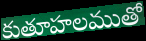
కుతూహలముతో